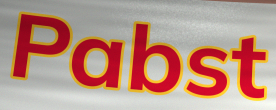
Pabst